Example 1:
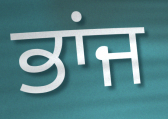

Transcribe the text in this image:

ਭਾਂਜ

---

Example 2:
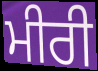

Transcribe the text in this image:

ਮੀਰੀ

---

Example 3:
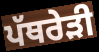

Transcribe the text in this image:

ਪੱਥਰੇੜੀ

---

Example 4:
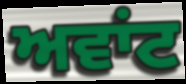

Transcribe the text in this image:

ਅਵਾਂਟ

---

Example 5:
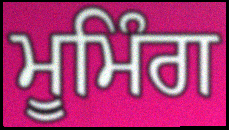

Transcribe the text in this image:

ਮੂਮਿੰਗ